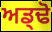
ਅਡ੍ਢੋ